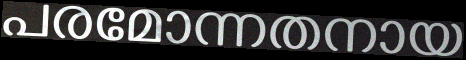
പരമോന്നതനായ